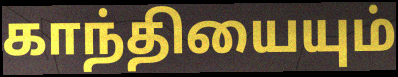
காந்தியையும்